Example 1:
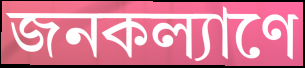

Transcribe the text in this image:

জনকল্যাণে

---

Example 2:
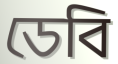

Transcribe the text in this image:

ডেবি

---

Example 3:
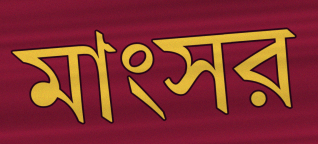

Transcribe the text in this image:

মাংসর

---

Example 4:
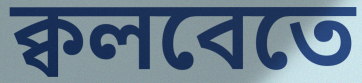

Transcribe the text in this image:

ক্বলবেতে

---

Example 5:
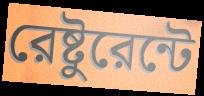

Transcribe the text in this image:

রেষ্টুরেন্টে